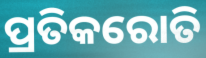
ପ୍ରତିକରୋତି